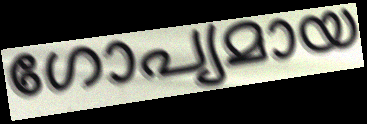
ഗോപ്യമായ